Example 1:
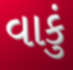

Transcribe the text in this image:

વાકું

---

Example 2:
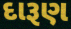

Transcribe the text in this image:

દારૂણ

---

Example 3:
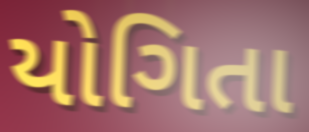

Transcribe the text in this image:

યોગિતા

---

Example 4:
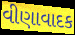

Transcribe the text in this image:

વીણાવાદક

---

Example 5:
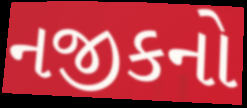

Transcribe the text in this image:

નજીકનો